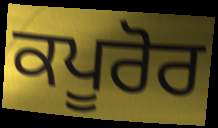
ਕਪੂਰੋਰ